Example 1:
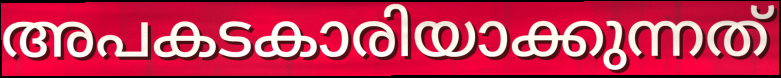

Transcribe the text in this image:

അപകടകാരിയാക്കുന്നത്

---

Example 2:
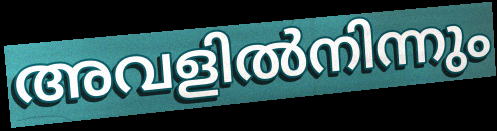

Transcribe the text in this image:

അവളിൽനിന്നും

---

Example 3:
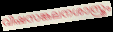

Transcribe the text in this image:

വിഷസങ്കലനശാസ്ത്രം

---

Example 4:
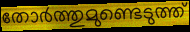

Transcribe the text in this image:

തോർത്തുമുണ്ടെടുത്ത്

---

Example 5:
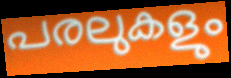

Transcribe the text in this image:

പരലുകളും